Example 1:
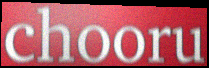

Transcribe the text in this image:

chooru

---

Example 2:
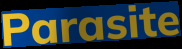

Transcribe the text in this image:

Parasite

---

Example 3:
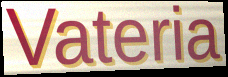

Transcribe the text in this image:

Vateria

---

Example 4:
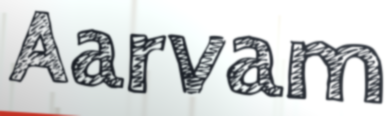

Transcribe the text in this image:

Aarvam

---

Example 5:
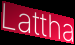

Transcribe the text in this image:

Lattha